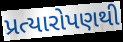
પ્રત્યારોપણથી